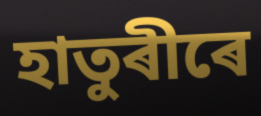
হাতুৰীৰে